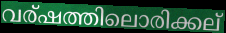
വര്ഷത്തിലൊരിക്കല്